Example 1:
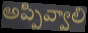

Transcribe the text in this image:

అప్పివ్వాలి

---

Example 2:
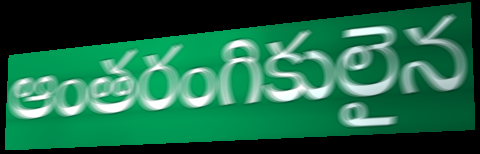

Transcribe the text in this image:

ఆంతరంగికులైన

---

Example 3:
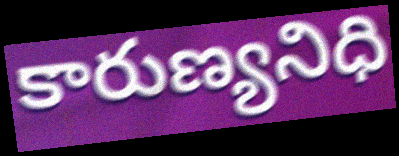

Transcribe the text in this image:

కారుణ్యనిధి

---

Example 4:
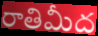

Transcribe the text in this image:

రాతిమీద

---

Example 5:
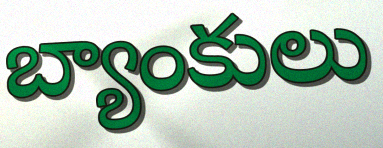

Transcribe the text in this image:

బ్యాంకులు